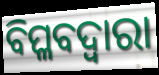
ବିପ୍ଳବଦ୍ୱାରା